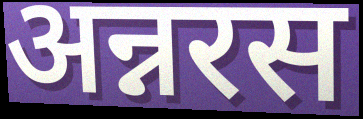
अन्नरस